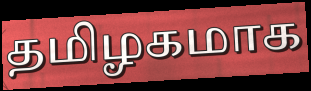
தமிழகமாக